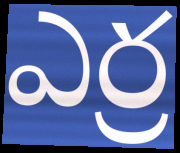
ఎర్ర